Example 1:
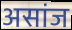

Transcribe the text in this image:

असांज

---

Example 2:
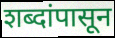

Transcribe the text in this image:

शब्दांपासून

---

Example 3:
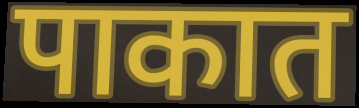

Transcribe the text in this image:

पाकात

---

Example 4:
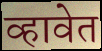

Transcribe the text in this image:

व्हावेत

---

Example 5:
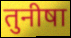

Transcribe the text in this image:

तुनीषा